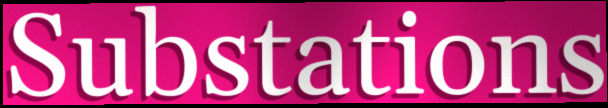
Substations